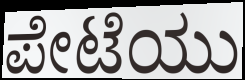
ಪೇಟೆಯು